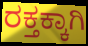
ರಕ್ತಕ್ಕಾಗಿ